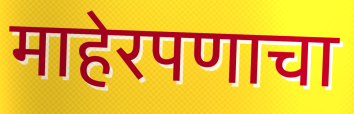
माहेरपणाचा